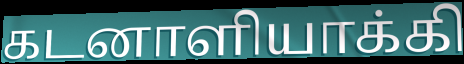
கடனாளியாக்கி